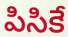
పిసికే